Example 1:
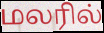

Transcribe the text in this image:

மலரில்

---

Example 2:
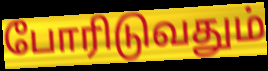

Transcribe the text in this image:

போரிடுவதும்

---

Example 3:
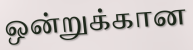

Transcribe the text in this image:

ஒன்றுக்கான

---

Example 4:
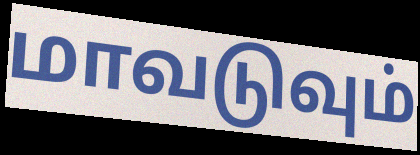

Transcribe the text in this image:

மாவடுவும்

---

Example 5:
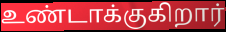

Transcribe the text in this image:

உண்டாக்குகிறார்